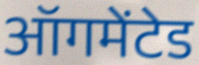
ऑगमेंटेड